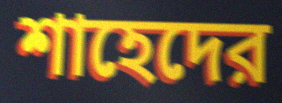
শাহেদের